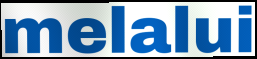
melalui